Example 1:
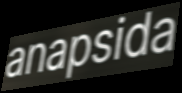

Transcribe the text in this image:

anapsida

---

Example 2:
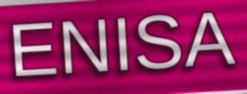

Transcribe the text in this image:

ENISA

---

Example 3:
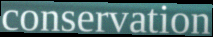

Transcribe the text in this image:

conservation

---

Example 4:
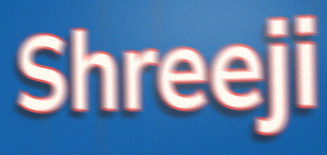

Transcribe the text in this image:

Shreeji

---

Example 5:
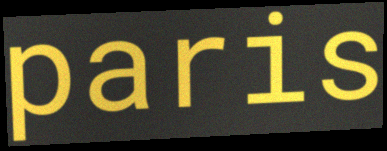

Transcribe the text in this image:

paris